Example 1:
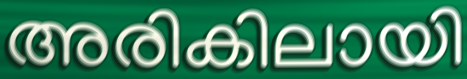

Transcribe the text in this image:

അരികിലായി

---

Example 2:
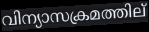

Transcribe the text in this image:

വിന്യാസക്രമത്തില്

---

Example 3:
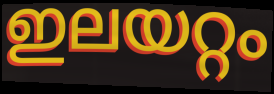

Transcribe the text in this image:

ഇലയറ്റം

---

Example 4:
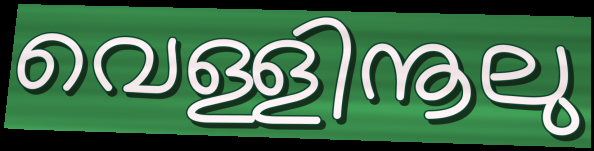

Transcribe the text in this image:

വെള്ളിനൂലു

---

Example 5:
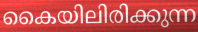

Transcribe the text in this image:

കൈയിലിരിക്കുന്ന